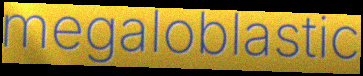
megaloblastic